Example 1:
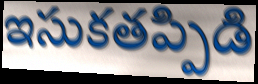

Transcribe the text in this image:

ఇసుకతప్పిడి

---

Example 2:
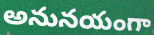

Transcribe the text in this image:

అనునయంగా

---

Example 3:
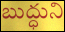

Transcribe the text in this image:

బుద్ధుని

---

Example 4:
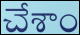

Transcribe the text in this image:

చేశాం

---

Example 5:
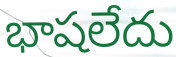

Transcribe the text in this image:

భాషలేదు